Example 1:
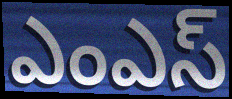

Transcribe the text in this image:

ఎంఎస్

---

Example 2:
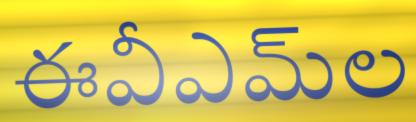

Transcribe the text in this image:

ఈవీఎమ్‌ల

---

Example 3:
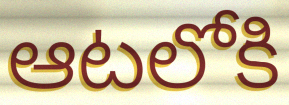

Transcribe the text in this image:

ఆటలోకి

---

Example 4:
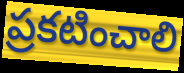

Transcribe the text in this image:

ప్రకటించాలి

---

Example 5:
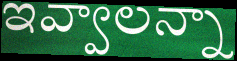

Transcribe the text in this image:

ఇవ్వాలన్నా